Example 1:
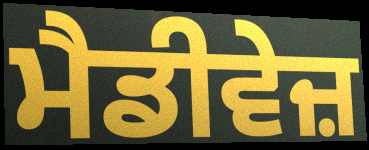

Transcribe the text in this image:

ਮੈਡੀਵੇਜ਼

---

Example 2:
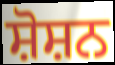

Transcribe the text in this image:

ਸ਼ੋਸ਼ਨ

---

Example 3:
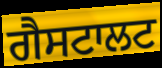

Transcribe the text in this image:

ਗੈਸਟਾਲਟ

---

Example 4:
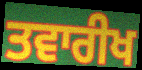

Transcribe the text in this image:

ਤਵਾਰੀਖ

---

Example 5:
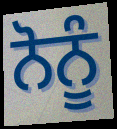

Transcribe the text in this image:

ਨੋਨੂੰ